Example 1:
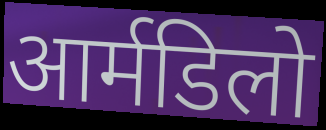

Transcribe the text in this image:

आर्मडिलो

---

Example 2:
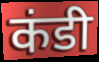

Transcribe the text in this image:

कंडी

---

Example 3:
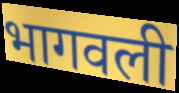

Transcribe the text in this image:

भागवली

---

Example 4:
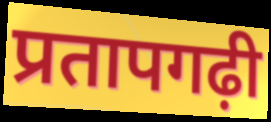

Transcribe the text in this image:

प्रतापगढ़ी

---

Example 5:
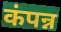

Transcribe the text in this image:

कंपन्न